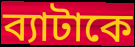
ব্যাটাকে